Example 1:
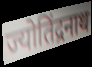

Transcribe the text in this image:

ज्योतिंद्रनाथ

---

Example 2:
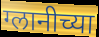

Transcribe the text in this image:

ग्लानीच्या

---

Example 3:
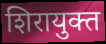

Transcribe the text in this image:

शिरायुक्त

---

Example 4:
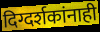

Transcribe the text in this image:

दिग्दर्शकांनाही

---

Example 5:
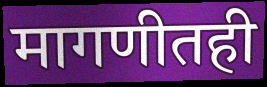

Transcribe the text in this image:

मागणीतही